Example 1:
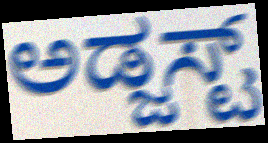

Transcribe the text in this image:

ಅಡ್ಜಸ್ಟ್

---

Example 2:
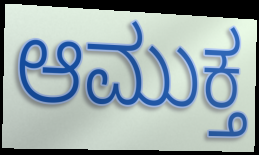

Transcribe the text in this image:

ಆಮುಕ್ತ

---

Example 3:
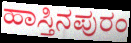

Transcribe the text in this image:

ಹಾಸ್ತಿನಪುರಂ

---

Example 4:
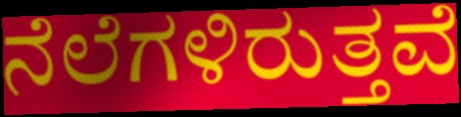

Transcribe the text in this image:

ನೆಲೆಗಳಿರುತ್ತವೆ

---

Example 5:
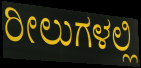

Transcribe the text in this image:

ರೀಲುಗಳಲ್ಲಿ